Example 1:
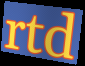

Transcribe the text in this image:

rtd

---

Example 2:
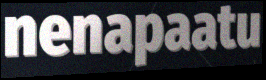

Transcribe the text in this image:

nenapaatu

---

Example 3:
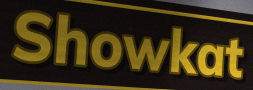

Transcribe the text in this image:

Showkat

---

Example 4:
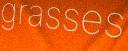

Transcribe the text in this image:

grasses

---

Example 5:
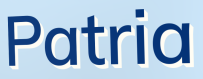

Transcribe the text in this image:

Patria